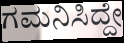
ಗಮನಿಸಿದ್ದೇ